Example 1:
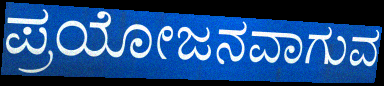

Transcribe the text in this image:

ಪ್ರಯೋಜನವಾಗುವ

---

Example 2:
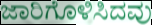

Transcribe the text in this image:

ಜಾರಿಗೊಳಿಸಿದವು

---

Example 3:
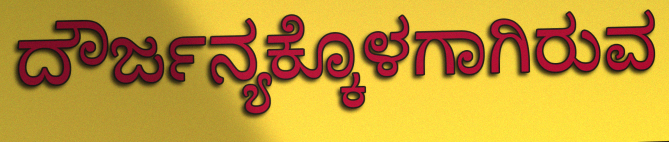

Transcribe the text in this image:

ದೌರ್ಜನ್ಯಕ್ಕೊಳಗಾಗಿರುವ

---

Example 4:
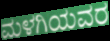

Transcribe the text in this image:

ಮಳಗಿಯವರ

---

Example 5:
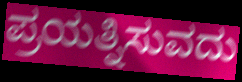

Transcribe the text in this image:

ಪ್ರಯತ್ನಿಸುವದು